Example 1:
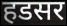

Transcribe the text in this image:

हडसर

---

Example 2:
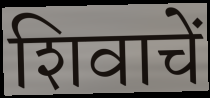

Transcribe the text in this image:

शिवाचें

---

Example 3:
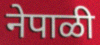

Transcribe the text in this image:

नेपाळी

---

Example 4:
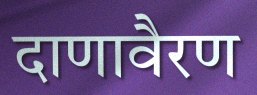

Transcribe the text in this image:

दाणावैरण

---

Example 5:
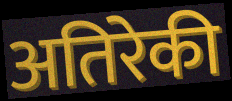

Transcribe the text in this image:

अतिरेकी